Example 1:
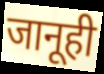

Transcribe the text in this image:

जानूही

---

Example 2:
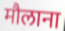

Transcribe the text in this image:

मौलाना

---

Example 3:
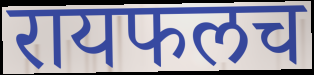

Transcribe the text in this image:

रायफलच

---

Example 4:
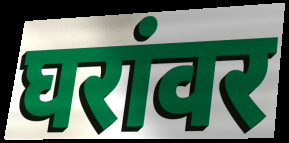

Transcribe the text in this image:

घरांवर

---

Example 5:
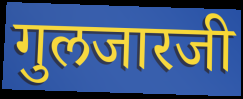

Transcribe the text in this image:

गुलजारजी